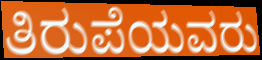
ತಿರುಪೆಯವರು